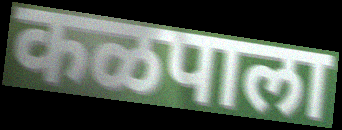
कळपाला